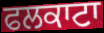
ਫਲਕਾਟਾ